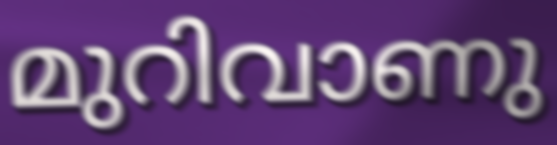
മുറിവാണു